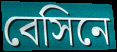
বেসিনে